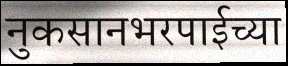
नुकसानभरपाईच्या